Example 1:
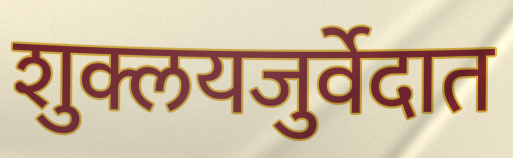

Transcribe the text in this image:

शुक्लयजुर्वेदात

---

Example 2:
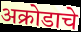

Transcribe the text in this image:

अक्रोडाचे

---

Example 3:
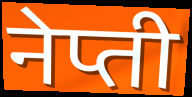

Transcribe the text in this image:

नेप्ती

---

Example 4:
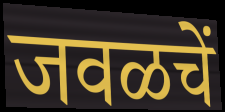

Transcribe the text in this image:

जवळचें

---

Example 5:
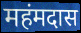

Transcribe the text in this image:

महंमदास